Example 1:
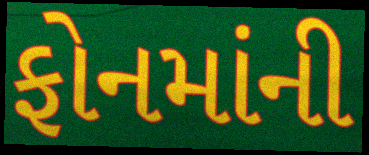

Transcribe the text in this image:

ફોનમાંની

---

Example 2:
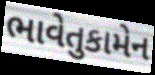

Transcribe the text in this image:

ભાવેતુકામેન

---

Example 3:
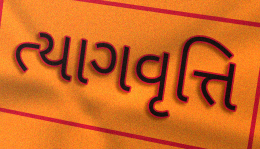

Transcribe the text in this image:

ત્યાગવૃત્તિ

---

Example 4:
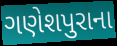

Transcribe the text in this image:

ગણેશપુરાના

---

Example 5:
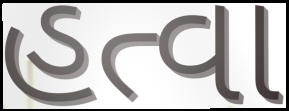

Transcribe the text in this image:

હત્વા